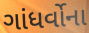
ગાંધર્વોના